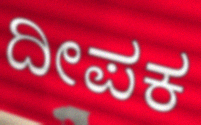
ದೀಪಕ